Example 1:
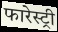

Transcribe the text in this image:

फारेस्ट्री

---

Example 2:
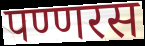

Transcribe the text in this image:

पण्णरस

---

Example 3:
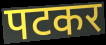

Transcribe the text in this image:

पटकर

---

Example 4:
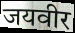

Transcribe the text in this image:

जयवीर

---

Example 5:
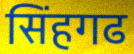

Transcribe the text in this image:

सिंहगढ